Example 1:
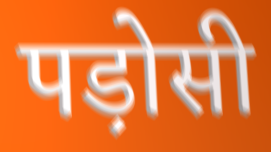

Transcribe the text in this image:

पड़ोसी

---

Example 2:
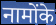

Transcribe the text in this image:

नामोंके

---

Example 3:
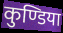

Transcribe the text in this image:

कुण्डिया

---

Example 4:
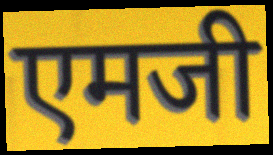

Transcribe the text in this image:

एमजी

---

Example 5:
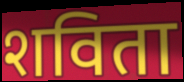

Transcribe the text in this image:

शविता